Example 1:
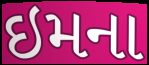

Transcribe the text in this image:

ઇમના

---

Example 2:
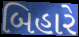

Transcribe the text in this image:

બિહારે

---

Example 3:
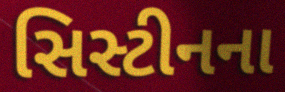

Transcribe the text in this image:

સિસ્ટીનના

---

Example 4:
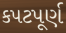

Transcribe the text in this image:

કપટપૂર્ણ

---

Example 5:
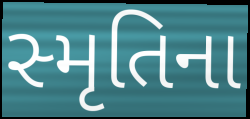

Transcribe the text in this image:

સ્મૃતિના